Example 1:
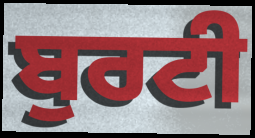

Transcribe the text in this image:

ਬੁਰਟੀ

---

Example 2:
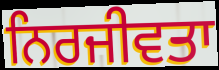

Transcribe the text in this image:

ਨਿਰਜੀਵਤਾ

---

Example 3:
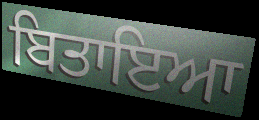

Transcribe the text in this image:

ਬਿਤਾਇਆ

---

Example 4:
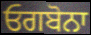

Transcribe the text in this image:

ਓਗਬੋਨਾ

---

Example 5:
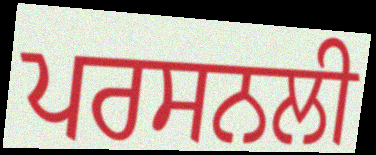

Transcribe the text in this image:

ਪਰਸਨਲੀ